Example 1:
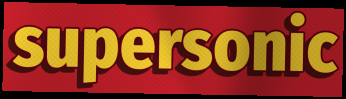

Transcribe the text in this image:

supersonic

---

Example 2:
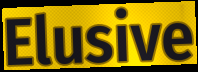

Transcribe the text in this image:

Elusive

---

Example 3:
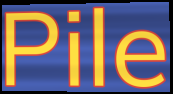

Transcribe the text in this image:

Pile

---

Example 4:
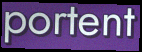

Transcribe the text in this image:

portent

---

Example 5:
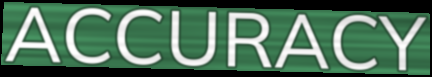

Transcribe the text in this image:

ACCURACY